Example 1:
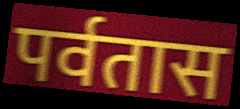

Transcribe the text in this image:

पर्वतास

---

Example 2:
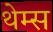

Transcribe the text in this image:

थेम्स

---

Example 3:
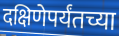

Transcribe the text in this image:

दक्षिणेपर्यंतच्या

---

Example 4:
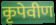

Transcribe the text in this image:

कृपेवीण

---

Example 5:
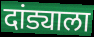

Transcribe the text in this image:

दांड्याला